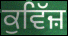
ਕੁਵਿੱਜ਼